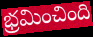
భ్రమించింది